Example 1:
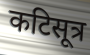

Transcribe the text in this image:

कटिसूत्र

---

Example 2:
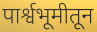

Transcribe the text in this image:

पार्श्वभूमीतून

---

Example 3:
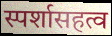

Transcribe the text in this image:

स्पर्शासहत्व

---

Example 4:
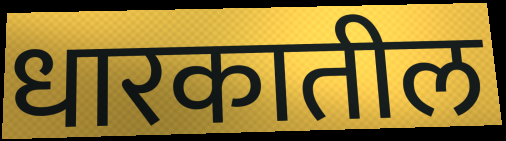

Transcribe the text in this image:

धारकातील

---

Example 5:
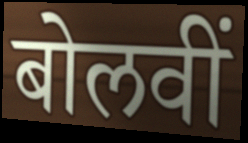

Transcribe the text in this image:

बोलवीं